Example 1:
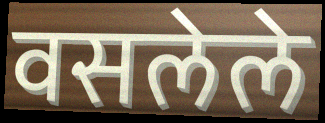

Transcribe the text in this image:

वसलेले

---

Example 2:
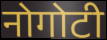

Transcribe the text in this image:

नोगोटी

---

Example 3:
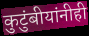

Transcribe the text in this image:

कुटुंबीयांनीही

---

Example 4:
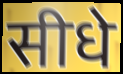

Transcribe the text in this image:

सीधे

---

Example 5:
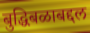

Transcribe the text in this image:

बुद्धिबळाबद्दल